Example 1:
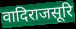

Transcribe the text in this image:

वादिराजसूरि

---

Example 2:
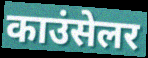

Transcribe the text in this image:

काउंसेलर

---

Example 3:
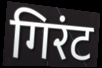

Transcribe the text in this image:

गिरंट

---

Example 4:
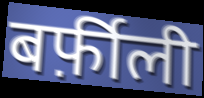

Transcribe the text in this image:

बर्फ़ीली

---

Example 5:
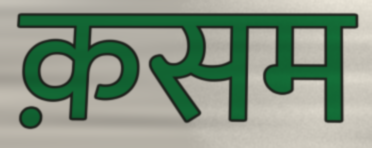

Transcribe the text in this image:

क़सम